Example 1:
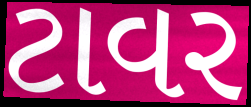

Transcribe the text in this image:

ટાવર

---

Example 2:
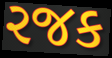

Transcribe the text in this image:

રજક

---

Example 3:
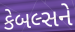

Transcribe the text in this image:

કેબલ્સને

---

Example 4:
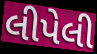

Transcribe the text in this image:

લીપેલી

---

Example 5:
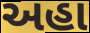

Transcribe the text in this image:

અહા